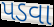
પડવા